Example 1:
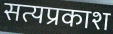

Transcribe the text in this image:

सत्यप्रकाश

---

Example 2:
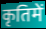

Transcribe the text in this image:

कृतिमें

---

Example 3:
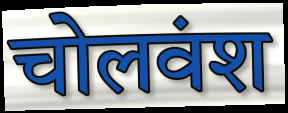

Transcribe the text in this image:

चोलवंश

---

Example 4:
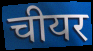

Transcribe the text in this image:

चीयर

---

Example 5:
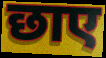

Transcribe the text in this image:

छाए